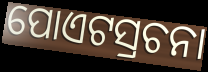
ପୋଏଟସ୍ରଚନା